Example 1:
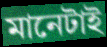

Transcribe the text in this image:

মানেটাই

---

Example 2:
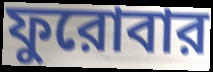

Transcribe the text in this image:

ফুরোবার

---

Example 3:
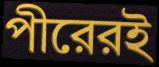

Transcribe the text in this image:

পীরেরই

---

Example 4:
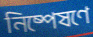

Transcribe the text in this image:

নিষ্পেষণে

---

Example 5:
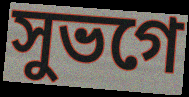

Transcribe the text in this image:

সুভগে